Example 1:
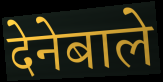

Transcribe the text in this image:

देनेबाले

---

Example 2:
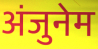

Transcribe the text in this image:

अंजुनेम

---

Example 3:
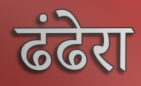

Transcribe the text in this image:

ढंढेरा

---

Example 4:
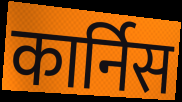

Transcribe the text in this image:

कार्निस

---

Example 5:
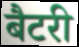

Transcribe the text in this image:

बैटरी